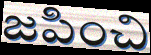
జపించి